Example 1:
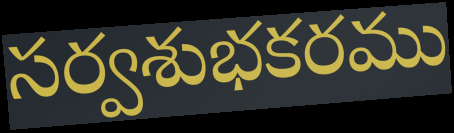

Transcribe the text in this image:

సర్వశుభకరము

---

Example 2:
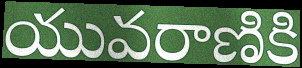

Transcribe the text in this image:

యువరాణికి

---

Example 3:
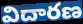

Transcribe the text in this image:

విదారణ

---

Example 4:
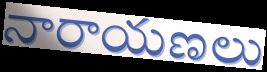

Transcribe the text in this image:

నారాయణలు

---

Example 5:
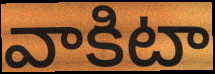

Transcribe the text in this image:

వాకిటా